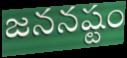
జననష్టం